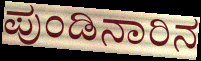
ಪುಂಡಿನಾರಿನ